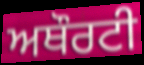
ਅਥੌਰਟੀ